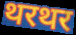
थरथर